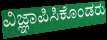
ವಿಜ್ಞಾಪಿಸಿಕೊಂಡರು